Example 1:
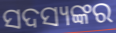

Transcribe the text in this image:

ସଦସ୍ୟଙ୍କର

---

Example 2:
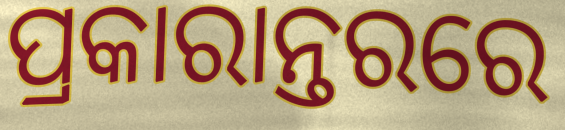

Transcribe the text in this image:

ପ୍ରକାରାନ୍ତରରେ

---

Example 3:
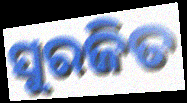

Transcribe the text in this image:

ସୁରଜିତ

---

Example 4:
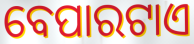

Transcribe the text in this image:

ବେପାରଟାଏ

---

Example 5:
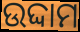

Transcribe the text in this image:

ଉଦ୍ଦାମ